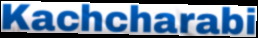
Kachcharabi